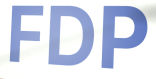
FDP